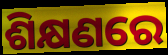
ଶିକ୍ଷଣରେ